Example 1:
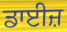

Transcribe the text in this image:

ਡਾਈਜ਼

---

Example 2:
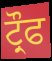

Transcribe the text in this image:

ਟ੍ਰੌਫ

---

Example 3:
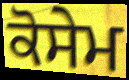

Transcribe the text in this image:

ਕੋਸੇਮ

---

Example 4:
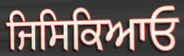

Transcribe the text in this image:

ਜਿਸਿਕਿਆਓ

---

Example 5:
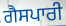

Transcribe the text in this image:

ਗੈਸਪਾਰੀ